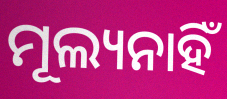
ମୂଲ୍ୟନାହିଁ